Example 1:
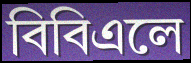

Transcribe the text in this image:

বিবিএলে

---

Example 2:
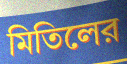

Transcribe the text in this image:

মিতিলের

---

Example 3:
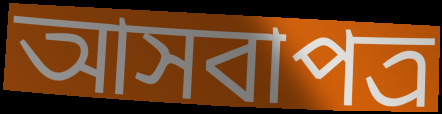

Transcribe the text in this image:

আসবাপত্র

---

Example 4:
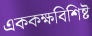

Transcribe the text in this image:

এককক্ষবিশিষ্ট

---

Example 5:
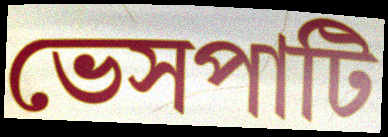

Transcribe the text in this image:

ভেসপাটি